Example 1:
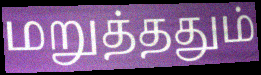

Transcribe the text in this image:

மறுத்ததும்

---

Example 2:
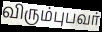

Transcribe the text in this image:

விரும்புபவர்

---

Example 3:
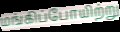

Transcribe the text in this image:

மங்கிப்போயிற்று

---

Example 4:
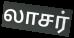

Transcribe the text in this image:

லாசர்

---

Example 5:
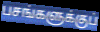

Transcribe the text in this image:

பசங்களுக்குப்